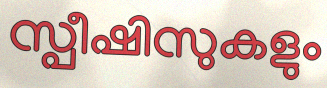
സ്പീഷിസുകളും